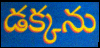
డక్కను